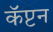
कॅप्टन